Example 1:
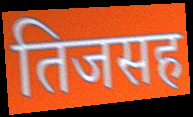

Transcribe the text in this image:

तिजसह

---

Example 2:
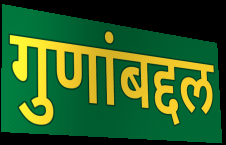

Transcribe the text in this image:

गुणांबद्दल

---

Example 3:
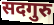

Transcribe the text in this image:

सदगुरु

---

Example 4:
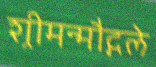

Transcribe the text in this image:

श्रीमन्मौद्गले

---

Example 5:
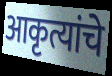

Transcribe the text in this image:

आकृत्यांचे